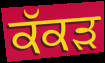
ਕੱਕਡ਼